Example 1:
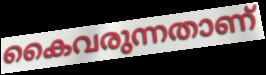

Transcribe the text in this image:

കൈവരുന്നതാണ്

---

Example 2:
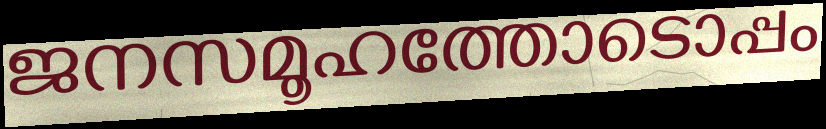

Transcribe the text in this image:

ജനസമൂഹത്തോടൊപ്പം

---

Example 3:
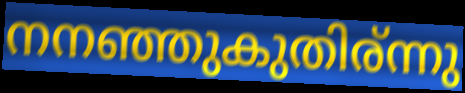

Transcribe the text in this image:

നനഞ്ഞുകുതിര്ന്നു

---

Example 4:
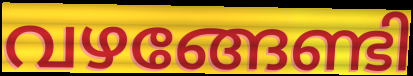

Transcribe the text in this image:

വഴങ്ങേണ്ടി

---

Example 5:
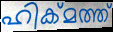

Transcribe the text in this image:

ഹിക്മത്ത്